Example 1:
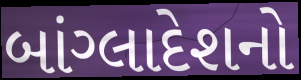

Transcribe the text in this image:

બાંગ્લાદેશનો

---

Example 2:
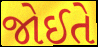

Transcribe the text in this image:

જોઈતે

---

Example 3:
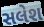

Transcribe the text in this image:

સલેશ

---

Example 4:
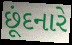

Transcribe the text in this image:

છૂંદનારે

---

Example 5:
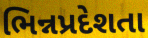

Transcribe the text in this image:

ભિન્નપ્રદેશતા